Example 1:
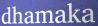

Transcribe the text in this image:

dhamaka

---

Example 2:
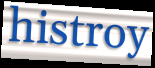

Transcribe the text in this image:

histroy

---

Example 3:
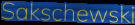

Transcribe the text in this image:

Sakschewski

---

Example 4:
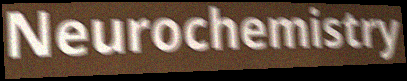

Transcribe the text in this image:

Neurochemistry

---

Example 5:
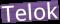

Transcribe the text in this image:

Telok